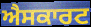
ਐਸਕਾਰਟ